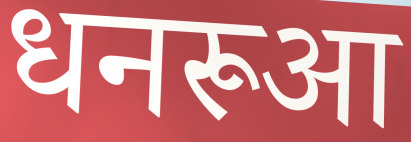
धनरूआ